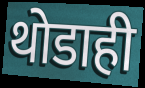
थोडाही